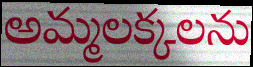
అమ్మలక్కలను